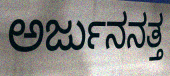
ಅರ್ಜುನನತ್ತ